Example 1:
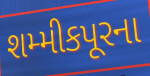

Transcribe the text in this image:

શમ્મીકપૂરના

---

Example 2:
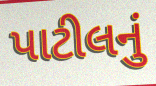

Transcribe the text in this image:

પાટીલનું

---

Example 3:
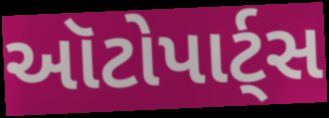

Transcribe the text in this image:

ઑટોપાર્ટ્સ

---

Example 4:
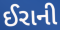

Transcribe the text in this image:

ઈરાની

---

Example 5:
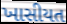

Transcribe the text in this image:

ખાસીયત